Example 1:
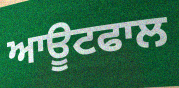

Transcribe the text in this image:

ਆਊਟਫਾਲ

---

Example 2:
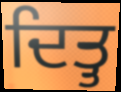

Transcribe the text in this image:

ਦਿਤ੍ਤ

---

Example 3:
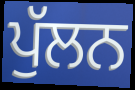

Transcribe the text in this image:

ਪੁੱਲਨ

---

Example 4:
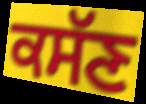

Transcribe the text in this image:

ਕਸੱਣ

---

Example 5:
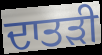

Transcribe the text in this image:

ਦਾਤੜੀ